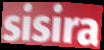
sisira